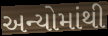
અન્યોમાંથી